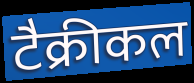
टैक्रीकल